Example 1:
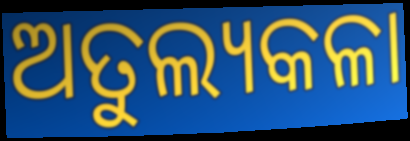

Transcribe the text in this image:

ଅତୁଲ୍ୟକଳା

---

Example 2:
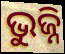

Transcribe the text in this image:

ଭୁଜ୍ନି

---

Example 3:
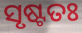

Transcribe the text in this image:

ସୃଷ୍ଟତଃ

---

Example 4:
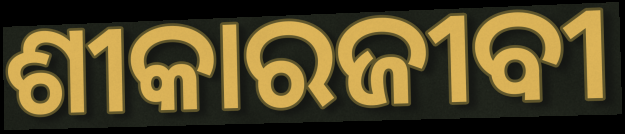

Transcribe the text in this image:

ଶୀକାରଜୀବୀ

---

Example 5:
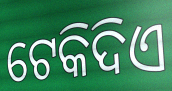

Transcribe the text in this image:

ଟେକିଦିଏ